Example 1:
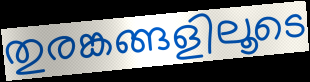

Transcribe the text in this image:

തുരങ്കങ്ങളിലൂടെ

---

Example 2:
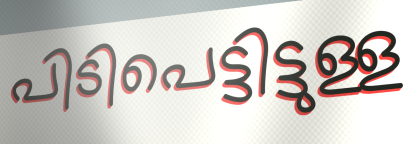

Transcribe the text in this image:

പിടിപെട്ടിട്ടുള്ള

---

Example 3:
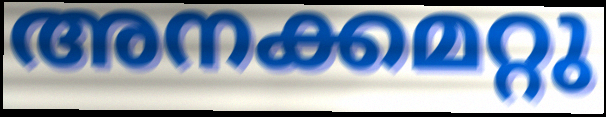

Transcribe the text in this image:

അനക്കമറ്റു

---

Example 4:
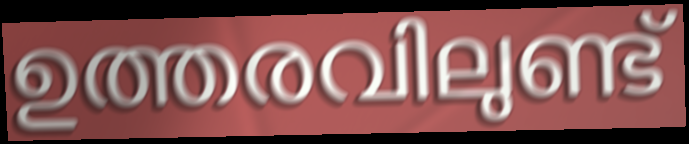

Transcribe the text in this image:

ഉത്തരവിലുണ്ട്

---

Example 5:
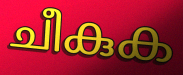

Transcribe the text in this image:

ചീകുക